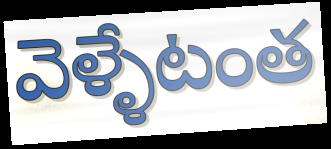
వెళ్ళేటంత